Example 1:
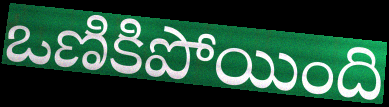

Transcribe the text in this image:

ఒణికిపోయింది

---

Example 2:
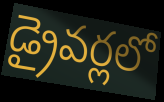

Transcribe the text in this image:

డ్రైవర్లలో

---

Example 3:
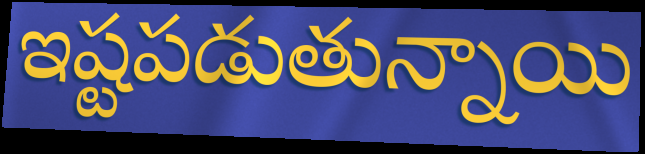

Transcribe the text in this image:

ఇష్టపడుతున్నాయి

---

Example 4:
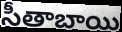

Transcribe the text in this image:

సీతాబాయి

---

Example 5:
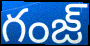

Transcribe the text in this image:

గంజ్